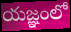
యజ్ఞంలో